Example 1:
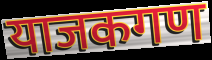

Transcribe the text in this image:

याजकगण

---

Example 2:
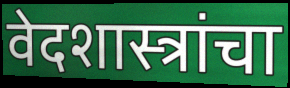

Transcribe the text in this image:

वेदशास्त्रांचा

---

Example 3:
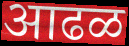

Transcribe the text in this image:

आढळ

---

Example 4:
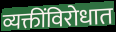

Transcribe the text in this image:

व्यक्तींविरोधात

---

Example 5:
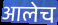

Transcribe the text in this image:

आलेच